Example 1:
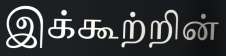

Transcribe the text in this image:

இக்கூற்றின்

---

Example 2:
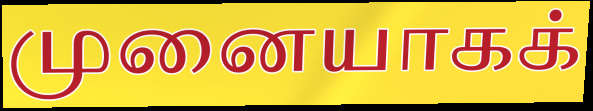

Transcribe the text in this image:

முனையாகக்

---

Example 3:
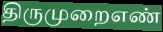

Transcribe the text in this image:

திருமுறைஎண்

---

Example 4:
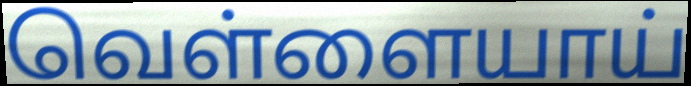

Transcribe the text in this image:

வெள்ளையாய்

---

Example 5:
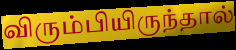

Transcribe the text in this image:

விரும்பியிருந்தால்